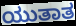
ಯುತಾತ